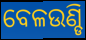
ବେଳଉଣ୍ଡି